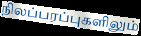
நிலப்பரப்புகளிலும்